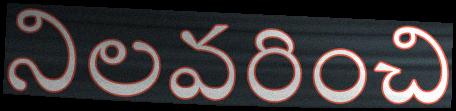
నిలవరించి